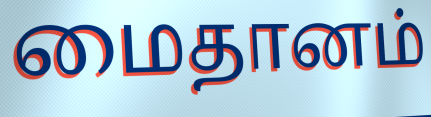
மைதானம்